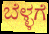
ಬೆಳ್ಳಗೆ